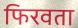
फिरवता